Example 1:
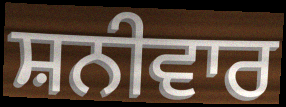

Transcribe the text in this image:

ਸ਼ਨੀਵਾਰ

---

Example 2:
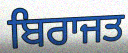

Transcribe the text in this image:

ਬਿਰਾਜਤ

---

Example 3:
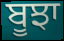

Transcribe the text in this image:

ਬੂਝਾ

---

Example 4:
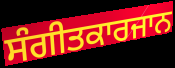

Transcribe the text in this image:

ਸੰਗੀਤਕਾਰਜਾਨ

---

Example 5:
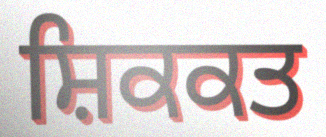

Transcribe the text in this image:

ਸ਼ਿਕਕਤ